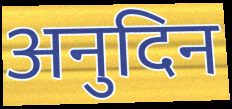
अनुदिन